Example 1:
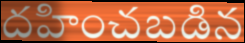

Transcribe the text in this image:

దహించబడిన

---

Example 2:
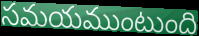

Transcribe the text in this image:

సమయముంటుంది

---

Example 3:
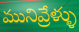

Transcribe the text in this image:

మునివ్రేళ్ళు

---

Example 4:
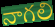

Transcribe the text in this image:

నాగలి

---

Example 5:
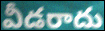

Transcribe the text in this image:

వీడరాదు